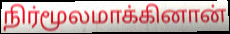
நிர்மூலமாக்கினான்